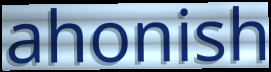
ahonish